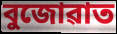
বুজোৱাত